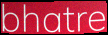
bhatre